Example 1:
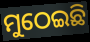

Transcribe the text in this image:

ମୁଠେଇଛି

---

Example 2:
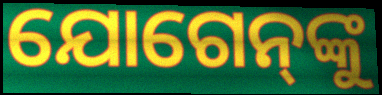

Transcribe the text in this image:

ଯୋଗେନ୍‌ଙ୍କୁ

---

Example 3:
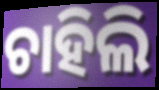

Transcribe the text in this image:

ଚାହିଲି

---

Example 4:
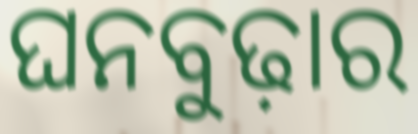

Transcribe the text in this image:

ଘନବୁଢ଼ାର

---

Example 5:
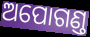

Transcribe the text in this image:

ଅପୋଗଣ୍ଡ